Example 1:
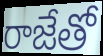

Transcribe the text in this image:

రాజేతో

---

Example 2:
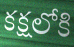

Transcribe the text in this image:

కక్షలోకి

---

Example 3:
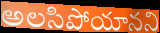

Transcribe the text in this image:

అలసిపోయానని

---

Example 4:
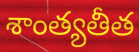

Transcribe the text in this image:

శాంత్యతీత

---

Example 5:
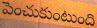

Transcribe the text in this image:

పెంచుకుంటుంది